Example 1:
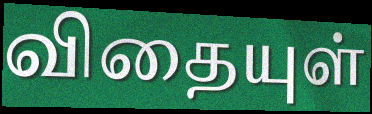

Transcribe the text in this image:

விதையுள்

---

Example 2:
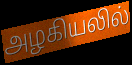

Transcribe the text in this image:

அழகியலில்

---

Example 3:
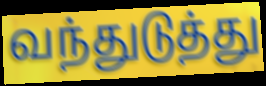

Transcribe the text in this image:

வந்துடுத்து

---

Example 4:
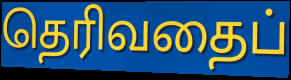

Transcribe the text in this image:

தெரிவதைப்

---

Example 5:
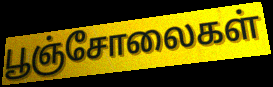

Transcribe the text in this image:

பூஞ்சோலைகள்